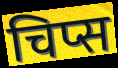
चिप्‍स